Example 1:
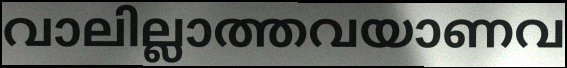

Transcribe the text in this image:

വാലില്ലാത്തവയാണവ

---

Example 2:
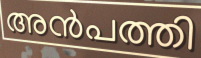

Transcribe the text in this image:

അൻപത്തി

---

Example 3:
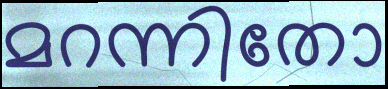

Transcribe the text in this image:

മറന്നിതോ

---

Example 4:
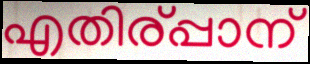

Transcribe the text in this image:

എതിര്പ്പാന്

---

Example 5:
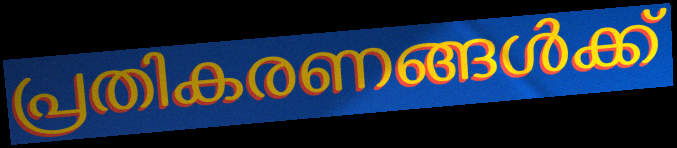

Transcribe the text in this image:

പ്രതികരണങ്ങൾക്ക്